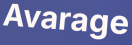
Avarage